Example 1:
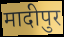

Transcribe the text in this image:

मादीपुर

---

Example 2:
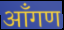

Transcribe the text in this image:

आँगण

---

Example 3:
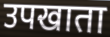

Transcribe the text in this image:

उपखाता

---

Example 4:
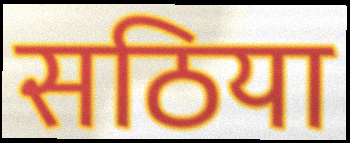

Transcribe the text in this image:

सठिया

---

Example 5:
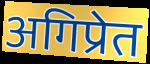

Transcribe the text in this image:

अगिप्रेत